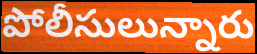
పోలీసులున్నారు